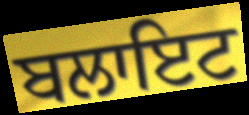
ਬਲਾਇਟ